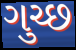
ગુચ્છ